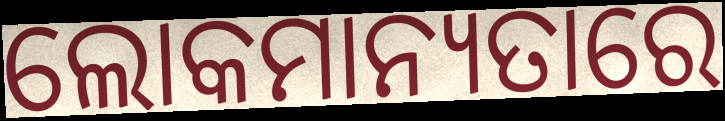
ଲୋକମାନ୍ୟତାରେ